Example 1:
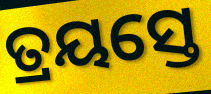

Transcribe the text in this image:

ତ୍ରୟସ୍ତେ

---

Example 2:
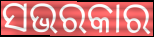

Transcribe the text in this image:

ସଭରକାର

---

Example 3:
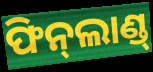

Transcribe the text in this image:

ଫିନ୍‌ଲାଣ୍ଡ୍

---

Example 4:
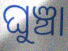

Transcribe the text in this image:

ଘୁଞ୍ଚା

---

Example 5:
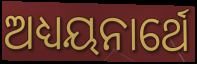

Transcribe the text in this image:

ଅଧ୍ୟୟନାର୍ଥେ